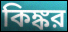
কিঙ্কর